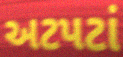
અટપટાં